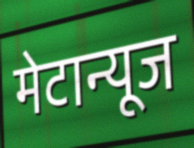
मेटान्यूज